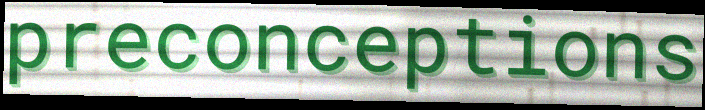
preconceptions